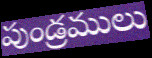
పుండ్రములు